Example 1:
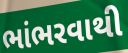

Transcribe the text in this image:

ભાંભરવાથી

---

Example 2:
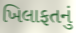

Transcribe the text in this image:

ખિલાફતનું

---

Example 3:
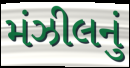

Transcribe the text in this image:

મંઝીલનું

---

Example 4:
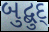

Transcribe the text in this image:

બુદ્બુદ્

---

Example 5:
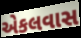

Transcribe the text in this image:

એકલવાસ